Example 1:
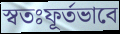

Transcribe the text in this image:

স্বতঃফূর্তভাবে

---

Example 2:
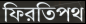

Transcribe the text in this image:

ফিরতিপথ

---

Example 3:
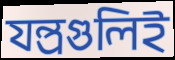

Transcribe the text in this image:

যন্ত্রগুলিই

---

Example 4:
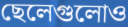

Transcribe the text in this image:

ছেলেগুলোও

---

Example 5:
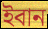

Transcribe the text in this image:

ইবান